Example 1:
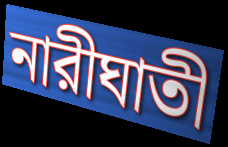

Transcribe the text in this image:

নারীঘাতী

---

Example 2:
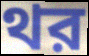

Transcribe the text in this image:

থর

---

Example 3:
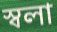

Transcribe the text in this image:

স্বলা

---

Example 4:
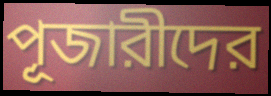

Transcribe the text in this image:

পূজারীদের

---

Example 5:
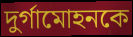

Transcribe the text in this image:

দুর্গামোহনকে